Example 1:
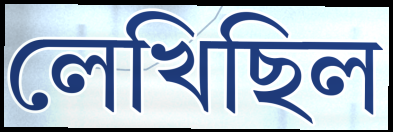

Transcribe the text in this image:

লেখিছিল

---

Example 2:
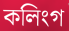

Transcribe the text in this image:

কলিংগ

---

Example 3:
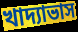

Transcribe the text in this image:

খাদ্যাভাস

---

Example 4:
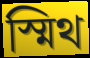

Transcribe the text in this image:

স্মিথ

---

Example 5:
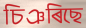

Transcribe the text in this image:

চিঞৰিছে